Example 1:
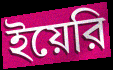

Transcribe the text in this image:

ইয়েরি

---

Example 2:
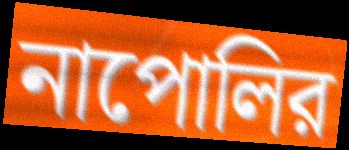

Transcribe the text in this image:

নাপোলির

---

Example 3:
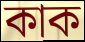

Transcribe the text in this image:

কাক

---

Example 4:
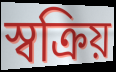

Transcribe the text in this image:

স্বক্রিয়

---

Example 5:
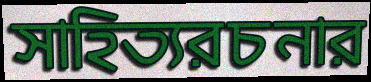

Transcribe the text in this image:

সাহিত্যরচনার